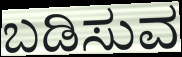
ಬಡಿಸುವ